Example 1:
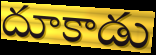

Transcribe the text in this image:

దూకాడు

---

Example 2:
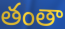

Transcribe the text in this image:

తంతా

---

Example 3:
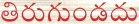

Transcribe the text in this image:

తిరుగుండదు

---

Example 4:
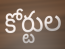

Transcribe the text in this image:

కోర్టుల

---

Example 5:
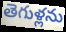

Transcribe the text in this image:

తెగుళ్లను